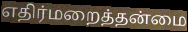
எதிர்மறைத்தன்மை